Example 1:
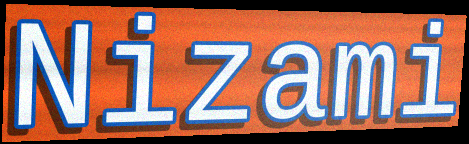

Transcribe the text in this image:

Nizami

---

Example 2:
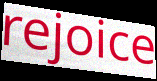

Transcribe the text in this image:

rejoice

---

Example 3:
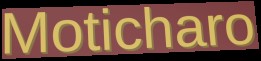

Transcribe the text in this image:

Moticharo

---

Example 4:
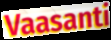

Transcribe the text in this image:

Vaasanti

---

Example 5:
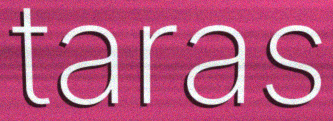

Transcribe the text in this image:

taras